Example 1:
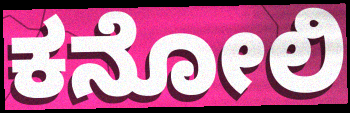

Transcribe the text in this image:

ಕನೋಲಿ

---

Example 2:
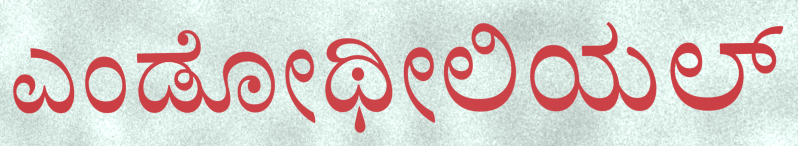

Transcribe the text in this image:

ಎಂಡೋಥೀಲಿಯಲ್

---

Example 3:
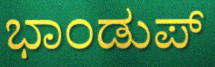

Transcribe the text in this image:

ಭಾಂಡುಪ್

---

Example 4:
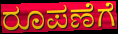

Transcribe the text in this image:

ರೂಪಣೆಗೆ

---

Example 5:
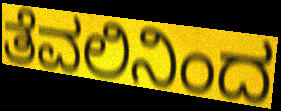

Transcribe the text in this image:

ತೆವಲಿನಿಂದ